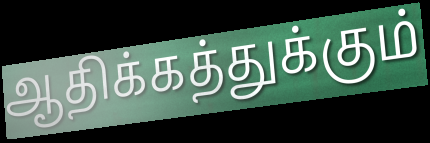
ஆதிக்கத்துக்கும்